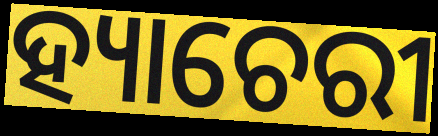
ହ୍ୟାଚେରୀ